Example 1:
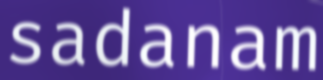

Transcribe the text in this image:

sadanam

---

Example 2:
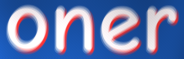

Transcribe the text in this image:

oner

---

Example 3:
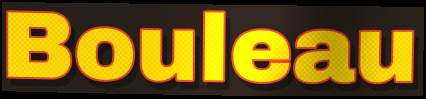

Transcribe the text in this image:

Bouleau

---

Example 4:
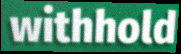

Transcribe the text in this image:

withhold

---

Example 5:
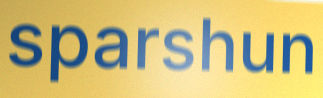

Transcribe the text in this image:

sparshun